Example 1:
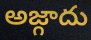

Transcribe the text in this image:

అజ్గాదు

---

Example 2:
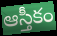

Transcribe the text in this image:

ఆస్తీకం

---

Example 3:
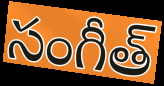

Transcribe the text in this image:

సంగీత్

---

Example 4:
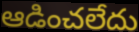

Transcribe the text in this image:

ఆడించలేదు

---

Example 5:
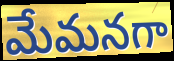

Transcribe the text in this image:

మేమనగా